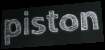
piston